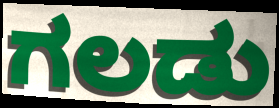
ಗಲಡು